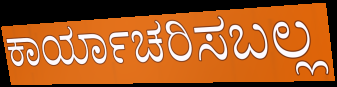
ಕಾರ್ಯಾಚರಿಸಬಲ್ಲ